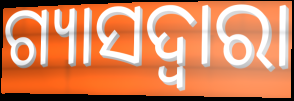
ଗ୍ୟାସଦ୍ଵାରା